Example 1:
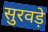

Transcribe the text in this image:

सुरवड़े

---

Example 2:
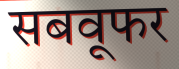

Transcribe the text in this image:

सबवूफर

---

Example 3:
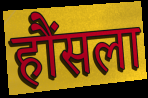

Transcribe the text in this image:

हौंसला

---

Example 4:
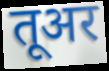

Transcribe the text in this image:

तूअर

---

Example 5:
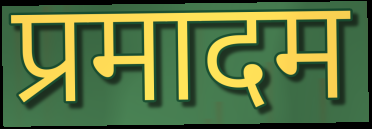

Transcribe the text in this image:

प्रमादम